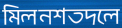
মিলনশতদলে